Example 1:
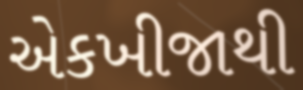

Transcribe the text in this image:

એકખીજાથી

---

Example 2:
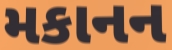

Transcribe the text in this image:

મકાનન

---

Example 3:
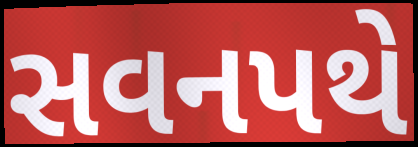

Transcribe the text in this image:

સવનપથે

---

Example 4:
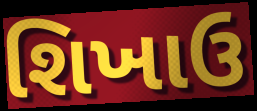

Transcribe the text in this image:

શિખાઉ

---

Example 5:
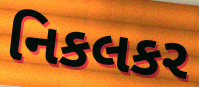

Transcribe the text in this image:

નિકલકર